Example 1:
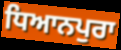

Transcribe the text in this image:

ਧਿਆਨਪੁਰਾ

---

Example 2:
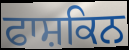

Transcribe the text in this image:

ਫਾਸ਼ਕਿਨ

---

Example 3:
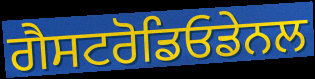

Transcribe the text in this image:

ਗੈਸਟਰੋਡਿਓਡੇਨਲ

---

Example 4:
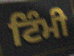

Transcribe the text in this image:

ਟਿੰਮੀ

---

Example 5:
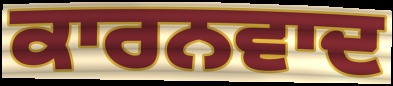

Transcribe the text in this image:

ਕਾਰਨਵਾਦ